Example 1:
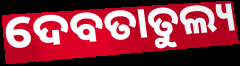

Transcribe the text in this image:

ଦେବତାତୁଲ୍ୟ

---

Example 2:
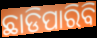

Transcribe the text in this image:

ଛାଡିପାରିବି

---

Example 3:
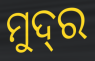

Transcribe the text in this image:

ମୁଦ୍‌ର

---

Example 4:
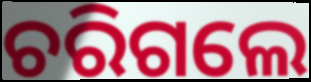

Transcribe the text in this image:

ଚରିଗଲେ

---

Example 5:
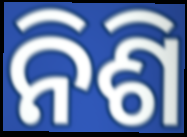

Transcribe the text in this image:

ନିଶି